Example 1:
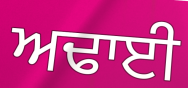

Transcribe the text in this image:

ਅਢਾਈ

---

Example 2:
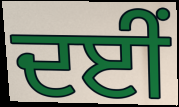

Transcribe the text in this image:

ਦਈਂ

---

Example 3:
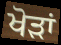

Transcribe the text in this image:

ਖੋੜਾਂ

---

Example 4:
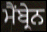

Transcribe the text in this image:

ਮੈਂਬ੍ਰੇਨ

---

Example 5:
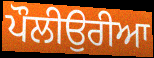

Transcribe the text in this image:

ਪੌਲੀਉਰੀਆ